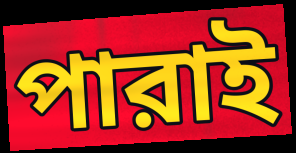
পারাই